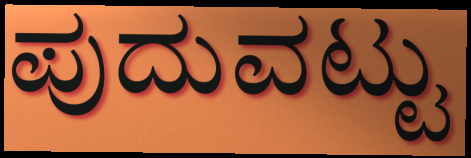
ಪುದುವಟ್ಟು